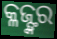
କ୍ଳଜ୍ଙ୍କର